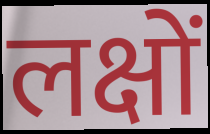
लक्षों